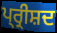
ਪ੍ਰ੍ਰੀਸ਼ਦ